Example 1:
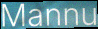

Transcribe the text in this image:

Mannu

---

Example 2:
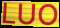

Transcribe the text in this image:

LUO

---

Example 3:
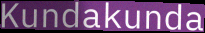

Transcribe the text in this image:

Kundakunda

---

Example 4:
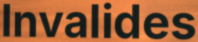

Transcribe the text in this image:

Invalides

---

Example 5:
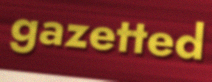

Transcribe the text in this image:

gazetted